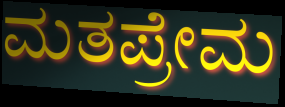
ಮತಪ್ರೇಮ